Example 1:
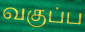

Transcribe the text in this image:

வகுப்ப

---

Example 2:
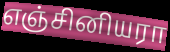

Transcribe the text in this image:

எஞ்சினியரா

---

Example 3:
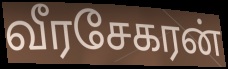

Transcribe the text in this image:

வீரசேகரன்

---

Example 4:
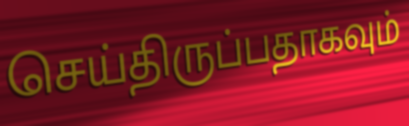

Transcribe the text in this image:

செய்திருப்பதாகவும்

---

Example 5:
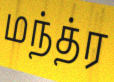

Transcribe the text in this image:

மந்த்ர